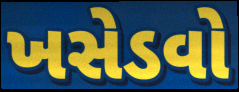
ખસેડવો